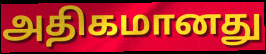
அதிகமானது